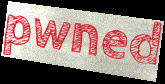
pwned